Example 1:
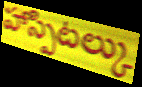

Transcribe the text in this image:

హాస్పిటల్కు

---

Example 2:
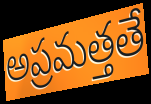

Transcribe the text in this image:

అప్రమత్తతే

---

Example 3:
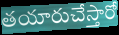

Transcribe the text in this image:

తయారుచేస్తారో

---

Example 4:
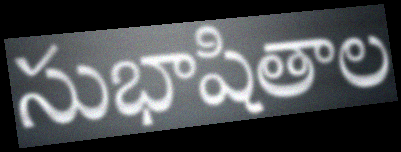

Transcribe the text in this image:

సుభాషితాల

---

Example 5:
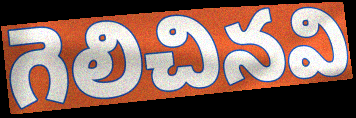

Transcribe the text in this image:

గెలిచినవి